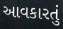
આવકારતું